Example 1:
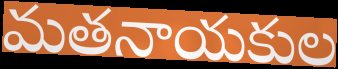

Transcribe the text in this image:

మతనాయకుల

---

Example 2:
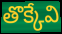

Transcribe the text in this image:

తొక్కేవి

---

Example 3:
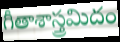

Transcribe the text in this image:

గీతాశాస్త్రమిదం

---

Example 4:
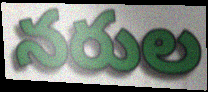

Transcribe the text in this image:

నరుల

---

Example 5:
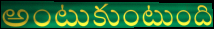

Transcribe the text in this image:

అంటుకుంటుంది